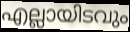
എല്ലായിടവും